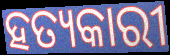
ହତ୍ୟକାରୀ